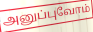
அனுப்புவோம்